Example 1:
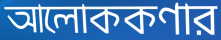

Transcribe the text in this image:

আলোককণার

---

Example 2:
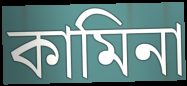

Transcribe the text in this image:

কামিনা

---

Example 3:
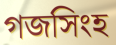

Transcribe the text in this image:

গজসিংহ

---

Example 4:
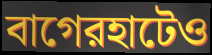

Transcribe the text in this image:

বাগেরহাটেও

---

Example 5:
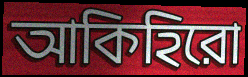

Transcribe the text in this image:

আকিহিরো